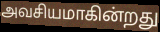
அவசியமாகின்றது